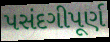
પસંદગીપૂર્ણ